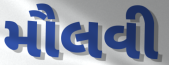
મૌલવી